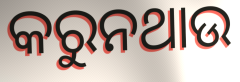
କରୁନଥାଉ